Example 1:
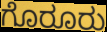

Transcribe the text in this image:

ಗೊರೂರು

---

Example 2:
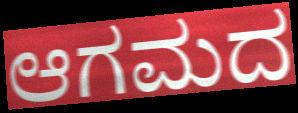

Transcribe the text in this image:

ಆಗಮದ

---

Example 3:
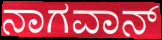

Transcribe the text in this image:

ನಾಗವಾನ್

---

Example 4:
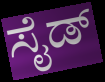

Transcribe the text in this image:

ಸೈಡ್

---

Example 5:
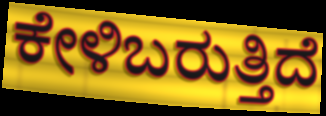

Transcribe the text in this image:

ಕೇಳಿಬರುತ್ತಿದೆ